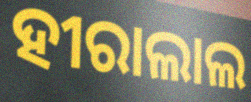
ହୀରାଲାଲ